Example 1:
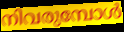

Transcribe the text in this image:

നിവരുമ്പോൾ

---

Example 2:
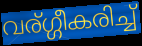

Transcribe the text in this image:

വര്ഗ്ഗീകരിച്ച്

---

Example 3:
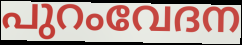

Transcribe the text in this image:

പുറംവേദന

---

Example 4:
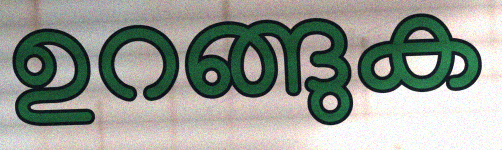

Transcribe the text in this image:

ഉറങ്ങുക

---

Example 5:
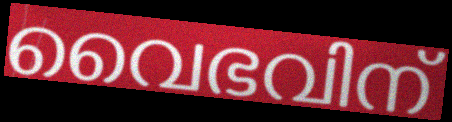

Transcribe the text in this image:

വൈഭവിന്